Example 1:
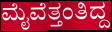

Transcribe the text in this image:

ಮೈವೆತ್ತಂತಿದ್ದ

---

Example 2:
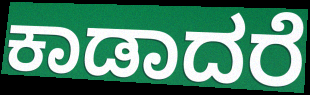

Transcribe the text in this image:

ಕಾಡಾದರೆ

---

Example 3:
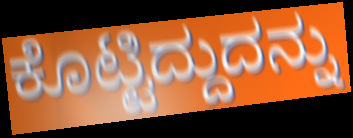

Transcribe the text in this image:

ಕೊಟ್ಟಿದ್ದುದನ್ನು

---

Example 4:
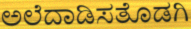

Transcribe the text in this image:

ಅಲೆದಾಡಿಸತೊಡಗಿ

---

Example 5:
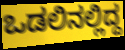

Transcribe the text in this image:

ಒಡಲಿನಲ್ಲಿದ್ದ